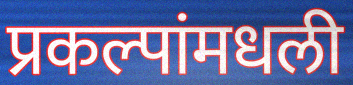
प्रकल्पांमधली